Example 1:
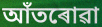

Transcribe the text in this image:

আঁতৰোৱা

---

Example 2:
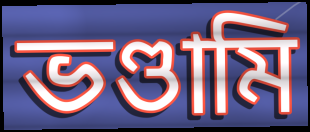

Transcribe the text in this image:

ভণ্ডামি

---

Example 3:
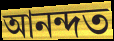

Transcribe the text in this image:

আনন্দত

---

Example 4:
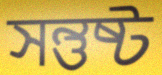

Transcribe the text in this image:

সন্তুষ্ট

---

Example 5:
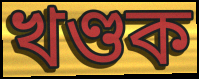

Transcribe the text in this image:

খণ্ডক